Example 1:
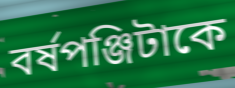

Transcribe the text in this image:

বর্ষপঞ্জিটাকে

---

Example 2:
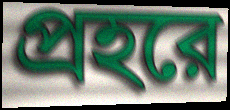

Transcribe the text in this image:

প্রহরে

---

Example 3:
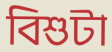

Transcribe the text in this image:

বিশুটা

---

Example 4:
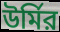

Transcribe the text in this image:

উর্মির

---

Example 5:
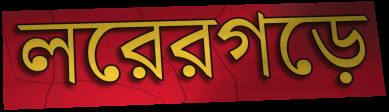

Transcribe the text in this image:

লরেরগড়ে